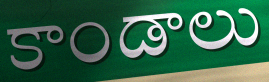
కాండాలు